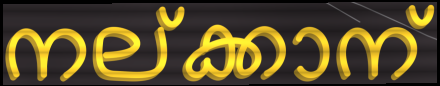
നല്ക്കാന്